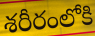
శరీరంలోకి